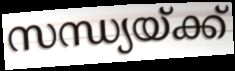
സന്ധ്യയ്ക്ക്